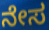
ನೇಸ